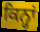
ਕਿਨ੍ਹਾਂ